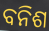
ବନିଶ